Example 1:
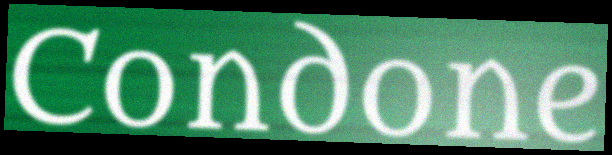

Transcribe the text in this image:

Condone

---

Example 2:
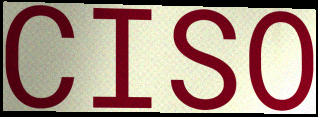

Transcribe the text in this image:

CISO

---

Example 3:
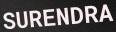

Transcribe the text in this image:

SURENDRA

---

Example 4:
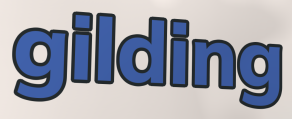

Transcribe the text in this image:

gilding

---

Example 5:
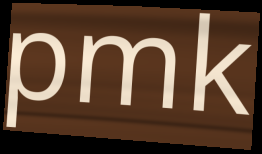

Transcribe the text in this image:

pmk